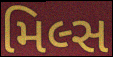
મિલ્સ